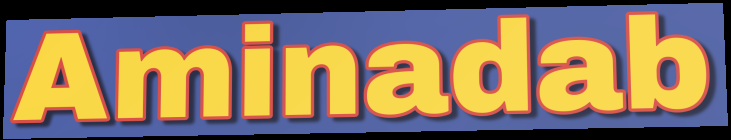
Aminadab